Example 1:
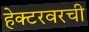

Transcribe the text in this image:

हेक्टरवरची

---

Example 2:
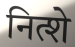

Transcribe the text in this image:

नित्शे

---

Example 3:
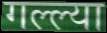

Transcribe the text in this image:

गल्ल्या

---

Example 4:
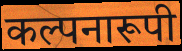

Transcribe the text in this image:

कल्पनारूपी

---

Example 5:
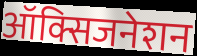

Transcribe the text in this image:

ऑक्सिजनेशन